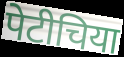
पेटीचिया